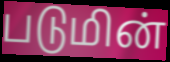
படுமின்